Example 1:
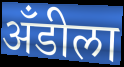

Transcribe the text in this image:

अँडीला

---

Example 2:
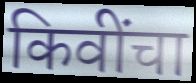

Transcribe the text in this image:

किवींचा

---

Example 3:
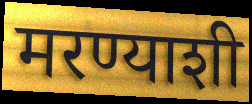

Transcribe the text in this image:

मरण्याशी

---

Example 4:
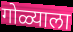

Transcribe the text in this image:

गोळ्याला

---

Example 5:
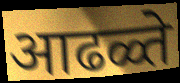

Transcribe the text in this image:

आढळ्ते